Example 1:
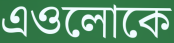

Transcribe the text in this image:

এওলোকে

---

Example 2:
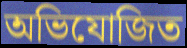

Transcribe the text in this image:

অভিযোজিত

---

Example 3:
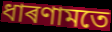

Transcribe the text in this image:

ধাৰণামতে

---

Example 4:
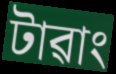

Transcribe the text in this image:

টাৱাং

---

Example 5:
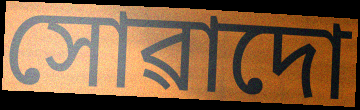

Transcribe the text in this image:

সোৱাদো